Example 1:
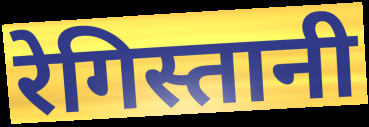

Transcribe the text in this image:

रेगिस्तानी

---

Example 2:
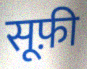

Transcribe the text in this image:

सूफ़ी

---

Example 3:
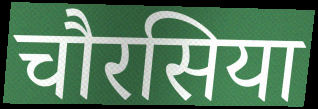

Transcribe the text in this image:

चौरसिया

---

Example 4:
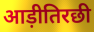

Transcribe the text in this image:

आड़ीतिरछी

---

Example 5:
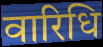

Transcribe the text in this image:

वारिधि